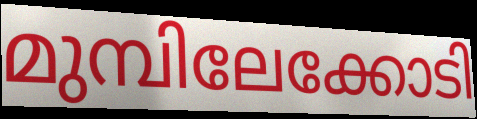
മുമ്പിലേക്കോടി